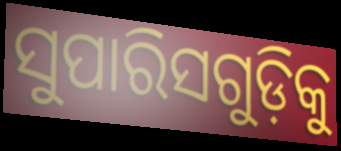
ସୁପାରିସଗୁଡ଼ିକୁ